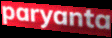
paryanta